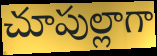
చూపుల్లాగా